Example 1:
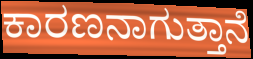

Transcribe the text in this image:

ಕಾರಣನಾಗುತ್ತಾನೆ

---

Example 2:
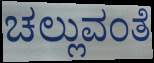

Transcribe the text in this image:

ಚಲ್ಲುವಂತೆ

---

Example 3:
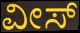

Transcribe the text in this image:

ವೀಸ್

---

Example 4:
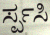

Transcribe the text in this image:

ರ್ಸ್ಪಸಿ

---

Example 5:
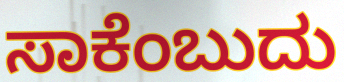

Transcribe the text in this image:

ಸಾಕೆಂಬುದು